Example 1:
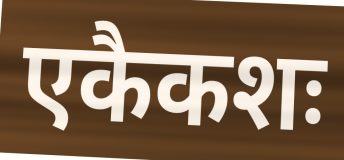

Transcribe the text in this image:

एकैकशः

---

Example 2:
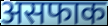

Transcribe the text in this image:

असफाक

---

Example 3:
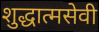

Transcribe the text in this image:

शुद्धात्मसेवी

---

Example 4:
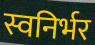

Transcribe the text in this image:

स्वनिर्भर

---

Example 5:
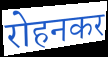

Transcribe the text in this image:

रोहनकर